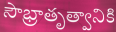
సౌభ్రాతృత్వానికి